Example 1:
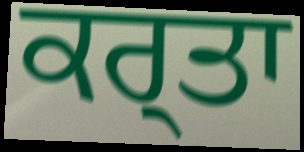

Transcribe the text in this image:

ਕਰ੍ਤਾ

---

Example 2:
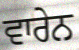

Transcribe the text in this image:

ਵਾਰੇਨ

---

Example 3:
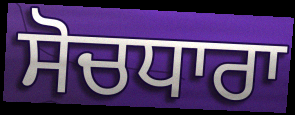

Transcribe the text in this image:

ਸੋਚਧਾਰਾ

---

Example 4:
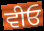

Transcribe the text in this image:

ਵੀਓ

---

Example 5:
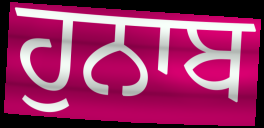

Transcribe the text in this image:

ਹੁਨਾਬ